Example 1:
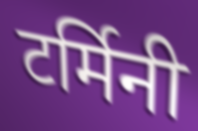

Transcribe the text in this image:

टर्मिनी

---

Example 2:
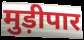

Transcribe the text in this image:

मुड़ीपार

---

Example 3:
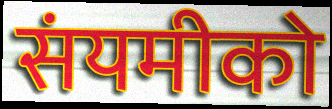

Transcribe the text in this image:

संयमीको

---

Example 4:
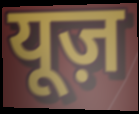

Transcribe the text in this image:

यूज़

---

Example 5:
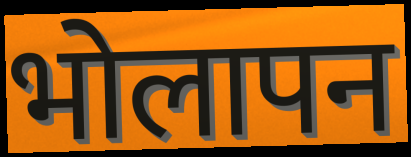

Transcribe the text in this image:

भोलापन